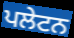
ਪਲੇਟਨ